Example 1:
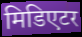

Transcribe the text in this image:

मिडिएटर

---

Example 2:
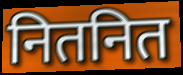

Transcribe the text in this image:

नितनित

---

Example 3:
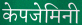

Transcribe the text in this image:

केपजेमिनी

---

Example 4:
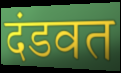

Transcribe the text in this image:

दंडवत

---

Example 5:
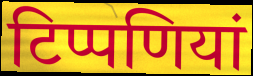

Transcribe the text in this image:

टिप्‍पणियां